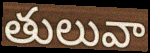
తులువా